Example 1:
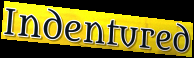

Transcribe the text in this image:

Indentured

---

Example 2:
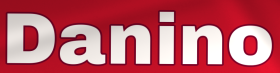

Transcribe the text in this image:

Danino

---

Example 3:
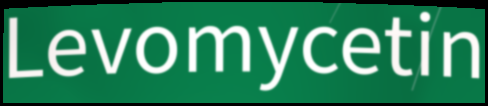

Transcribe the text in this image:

Levomycetin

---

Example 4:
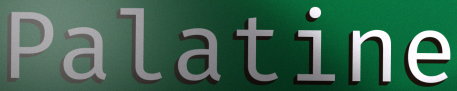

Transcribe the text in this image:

Palatine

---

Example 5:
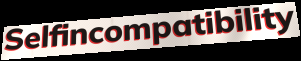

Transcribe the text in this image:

Selfincompatibility